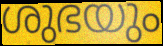
ശുഭയും